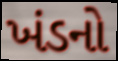
ખંડનો